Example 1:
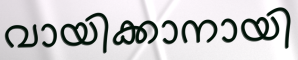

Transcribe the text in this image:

വായിക്കാനായി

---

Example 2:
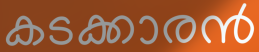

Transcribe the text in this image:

കടക്കാരൻ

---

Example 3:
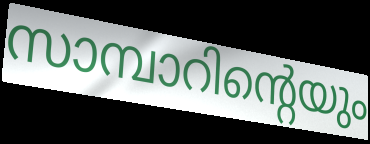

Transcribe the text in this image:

സാമ്പാറിന്റെയും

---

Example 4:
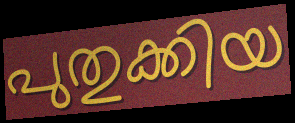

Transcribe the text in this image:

പുതുക്കിയ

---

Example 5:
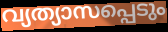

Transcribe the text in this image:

വ്യത്യാസപ്പെടും